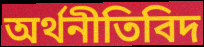
অৰ্থনীতিবিদ